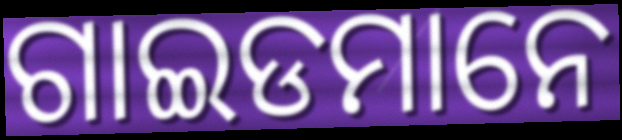
ଗାଇଡମାନେ